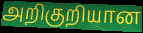
அறிகுறியான